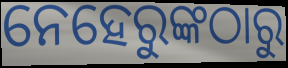
ନେହେରୁଙ୍କଠାରୁ